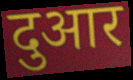
दुआर